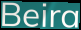
Beira